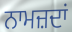
ਨਾਮਜ਼ਦਾਂ